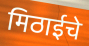
मिठाईचे